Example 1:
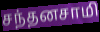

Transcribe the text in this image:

சந்தனசாமி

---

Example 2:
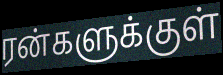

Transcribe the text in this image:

ரன்களுக்குள்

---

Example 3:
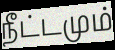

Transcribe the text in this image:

நீட்டமும்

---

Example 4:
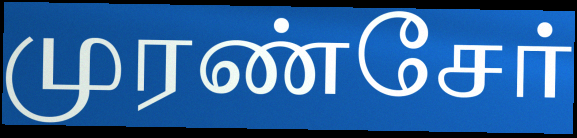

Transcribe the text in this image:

முரண்சேர்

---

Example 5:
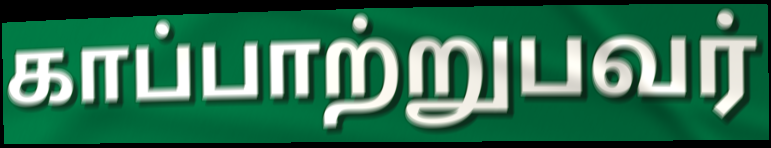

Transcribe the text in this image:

காப்பாற்றுபவர்